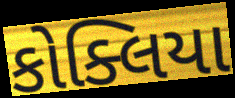
કોક્લિયા